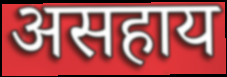
असहाय